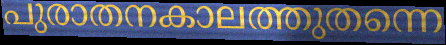
പുരാതനകാലത്തുതന്നെ